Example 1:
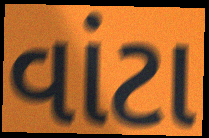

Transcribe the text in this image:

વાંટા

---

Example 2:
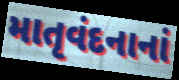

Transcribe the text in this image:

માતૃવંદનાનાં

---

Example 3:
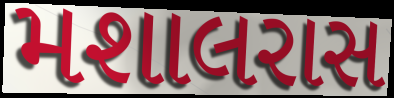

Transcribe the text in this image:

મશાલરાસ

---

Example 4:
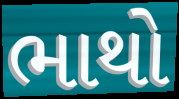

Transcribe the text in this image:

ભાથો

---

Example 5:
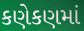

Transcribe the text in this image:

કણેકણમાં